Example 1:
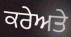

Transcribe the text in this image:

ਕਰੇਅਤੇ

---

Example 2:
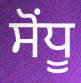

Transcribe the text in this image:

ਸੋਂਧੂ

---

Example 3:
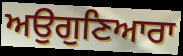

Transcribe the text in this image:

ਅਉਗੁਣਿਆਰਾ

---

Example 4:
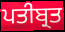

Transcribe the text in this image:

ਪਤੀਬ੍ਰਤ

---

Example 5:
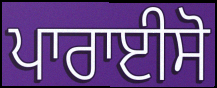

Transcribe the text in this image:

ਪਾਰਾਈਸੋ